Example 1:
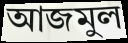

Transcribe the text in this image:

আজমুল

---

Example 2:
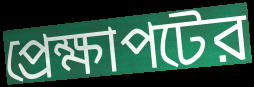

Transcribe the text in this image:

প্রেক্ষাপটের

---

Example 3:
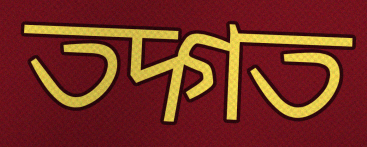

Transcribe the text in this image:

তদ্গত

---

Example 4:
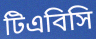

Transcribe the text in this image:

টিএবিসি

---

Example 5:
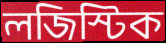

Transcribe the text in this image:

লজিস্টিক